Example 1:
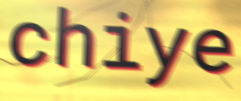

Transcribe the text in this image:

chiye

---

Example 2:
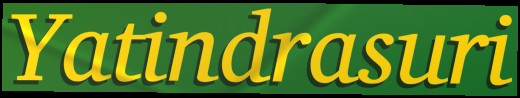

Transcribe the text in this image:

Yatindrasuri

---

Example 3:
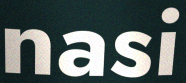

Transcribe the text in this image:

nasi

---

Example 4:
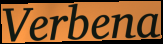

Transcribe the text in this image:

Verbena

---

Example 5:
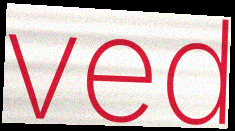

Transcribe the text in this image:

ved